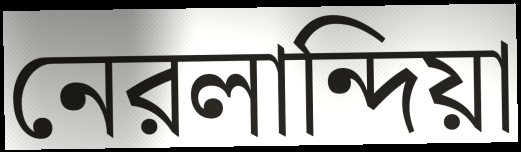
নেরলান্দিয়া